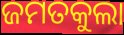
ଜମତକୁଲା